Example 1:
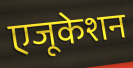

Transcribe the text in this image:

एजूकेशन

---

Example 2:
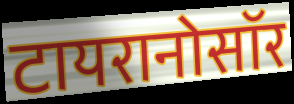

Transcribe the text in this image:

टायरानोसॉर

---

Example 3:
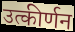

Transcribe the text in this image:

उत्कीर्णन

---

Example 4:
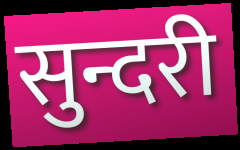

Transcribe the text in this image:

सुन्दरी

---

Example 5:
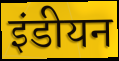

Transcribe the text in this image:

इंडीयन